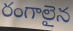
రంగాలైన